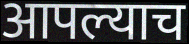
आपल्याच